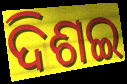
ଦିଶଇ